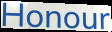
Honour